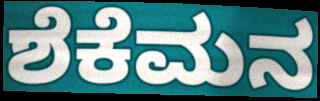
ಶೆಕೆಮನ